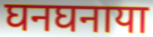
घनघनाया